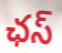
ఛస్